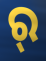
ର୍